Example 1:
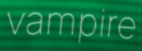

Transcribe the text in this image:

vampire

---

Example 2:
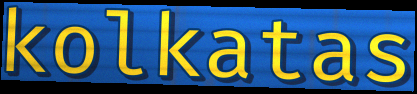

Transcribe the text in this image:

kolkatas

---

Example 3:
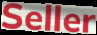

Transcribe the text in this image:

Seller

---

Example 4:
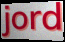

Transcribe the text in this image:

jord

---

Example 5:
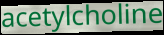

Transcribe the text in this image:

acetylcholine